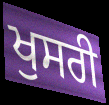
ਖੁਸਰੀ